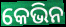
କେଭିନ